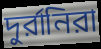
দুর্রানিরা